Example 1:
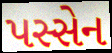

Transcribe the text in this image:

પસ્સેન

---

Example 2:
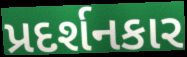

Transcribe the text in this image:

પ્રદર્શનકાર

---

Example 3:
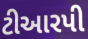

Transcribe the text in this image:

ટીઆરપી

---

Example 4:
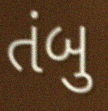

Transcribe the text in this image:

તંબુ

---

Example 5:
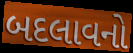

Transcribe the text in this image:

બદલાવનો